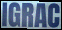
IGRAC